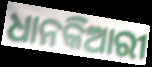
ଧାନକିଆରୀ